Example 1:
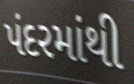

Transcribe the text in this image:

પંદરમાંથી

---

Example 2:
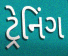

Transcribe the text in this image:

ટ્રેનિંગ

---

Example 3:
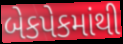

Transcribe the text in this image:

બેકપેકમાંથી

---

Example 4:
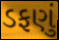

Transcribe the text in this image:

ડફણું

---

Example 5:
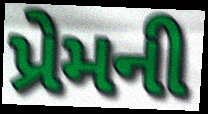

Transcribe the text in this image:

પ્રેમની